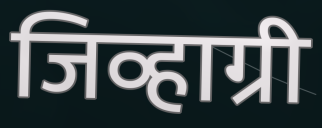
जिव्हाग्री